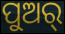
ପୁଅର୍